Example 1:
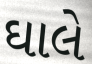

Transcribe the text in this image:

ઘાલે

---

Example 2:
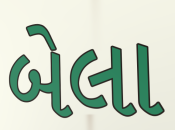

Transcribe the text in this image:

બેલા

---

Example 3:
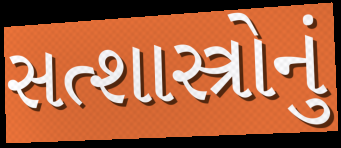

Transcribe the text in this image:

સત્શાસ્ત્રોનું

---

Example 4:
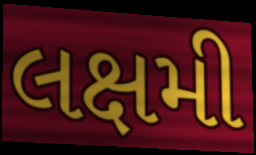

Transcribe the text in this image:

લક્ષમી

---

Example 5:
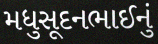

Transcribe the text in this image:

મધુસૂદનભાઈનું